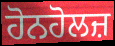
ਹੋਨਹੋਲਜ਼